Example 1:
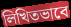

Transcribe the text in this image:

লিখিতভাবে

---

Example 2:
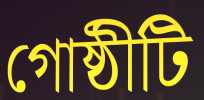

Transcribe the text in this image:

গোষ্ঠীটি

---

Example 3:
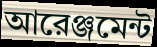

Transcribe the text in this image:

আরেঞ্জমেন্ট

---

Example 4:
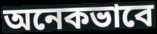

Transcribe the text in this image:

অনেকভাবে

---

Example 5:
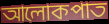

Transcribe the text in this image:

আলোকপাত